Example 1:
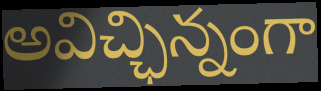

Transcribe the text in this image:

అవిచ్ఛిన్నంగా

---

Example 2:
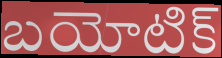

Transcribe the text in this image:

బయోటిక్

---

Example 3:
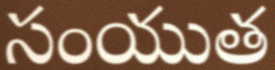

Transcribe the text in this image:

సంయుత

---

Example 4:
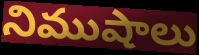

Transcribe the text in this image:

నిముషాలు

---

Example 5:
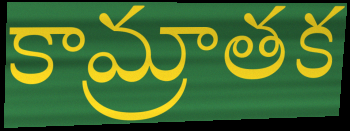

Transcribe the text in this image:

కామ్రాతక